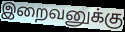
இறைவனுக்கு